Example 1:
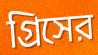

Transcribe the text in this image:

গ্রিসের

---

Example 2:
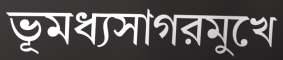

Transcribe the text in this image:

ভূমধ্যসাগরমুখে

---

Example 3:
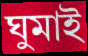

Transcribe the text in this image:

ঘুমাই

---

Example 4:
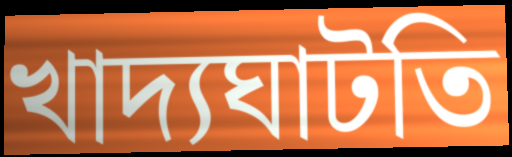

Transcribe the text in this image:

খাদ্যঘাটতি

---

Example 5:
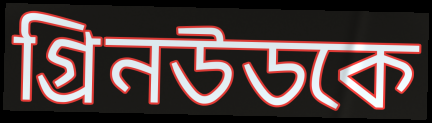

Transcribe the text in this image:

গ্রিনউডকে